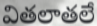
వితలాతలే